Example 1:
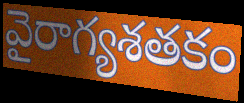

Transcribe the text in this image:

వైరాగ్యశతకం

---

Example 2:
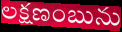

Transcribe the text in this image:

లక్షణంబును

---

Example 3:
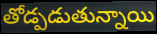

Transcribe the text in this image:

తోడ్పడుతున్నాయి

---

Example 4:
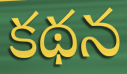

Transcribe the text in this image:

కథన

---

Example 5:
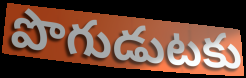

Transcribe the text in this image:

పొగుడుటకు